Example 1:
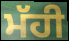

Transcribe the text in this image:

ਮੱਹੀ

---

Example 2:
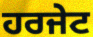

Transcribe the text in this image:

ਹਰਜੇਟ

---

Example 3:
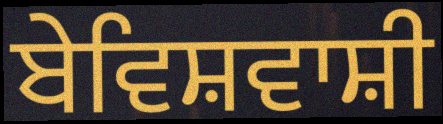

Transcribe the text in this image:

ਬੇਵਿਸ਼ਵਾਸ਼ੀ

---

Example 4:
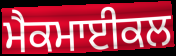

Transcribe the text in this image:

ਮੈਕਮਾਈਕਲ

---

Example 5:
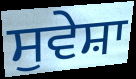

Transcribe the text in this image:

ਸੁਵੇਸ਼ਾ